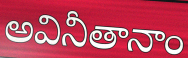
అవినీతానాం